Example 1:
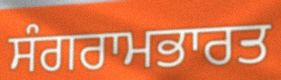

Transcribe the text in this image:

ਸੰਗਰਾਮਭਾਰਤ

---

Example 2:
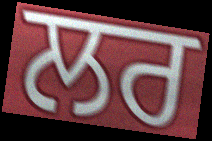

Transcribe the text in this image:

ਲਰ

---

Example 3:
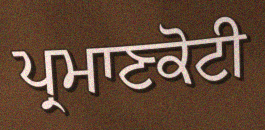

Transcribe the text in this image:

ਪ੍ਰਮਾਣਕੋਟੀ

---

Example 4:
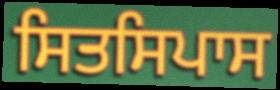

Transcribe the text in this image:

ਸਿਤਸਿਪਾਸ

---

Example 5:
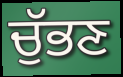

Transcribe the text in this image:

ਚੁੱਭਣ